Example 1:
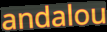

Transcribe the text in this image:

andalou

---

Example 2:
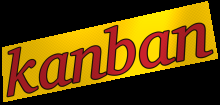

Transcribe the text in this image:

kanban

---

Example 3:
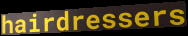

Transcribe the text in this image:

hairdressers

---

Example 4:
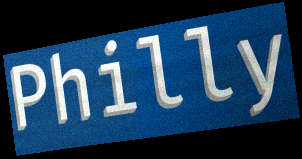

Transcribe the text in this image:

Philly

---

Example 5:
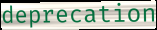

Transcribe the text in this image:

deprecation